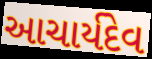
આચાર્યદેવ